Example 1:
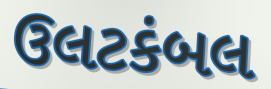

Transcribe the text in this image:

ઉલટકંબલ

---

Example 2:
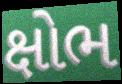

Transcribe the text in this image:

ક્ષોભ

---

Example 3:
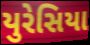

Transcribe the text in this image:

યુરેસિયા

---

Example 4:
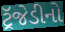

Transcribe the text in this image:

ટ્રૅજેડીનો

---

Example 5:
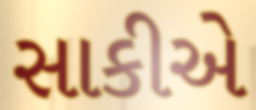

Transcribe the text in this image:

સાકીએ